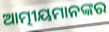
ଆତ୍ମୀୟମାନଙ୍କର